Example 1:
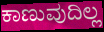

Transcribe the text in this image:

ಕಾಣುವುದಿಲ್ಲ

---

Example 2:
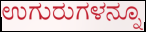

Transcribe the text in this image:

ಉಗುರುಗಳನ್ನೂ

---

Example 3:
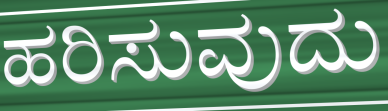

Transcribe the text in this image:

ಹರಿಸುವುದು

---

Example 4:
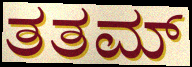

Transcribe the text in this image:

ತತಮ್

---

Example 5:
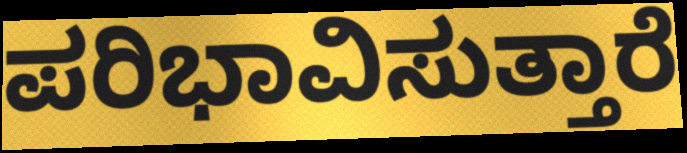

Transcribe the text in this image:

ಪರಿಭಾವಿಸುತ್ತಾರೆ